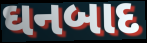
ઘનબાદ